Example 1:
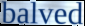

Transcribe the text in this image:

balved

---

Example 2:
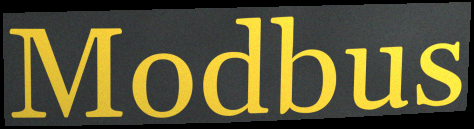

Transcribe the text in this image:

Modbus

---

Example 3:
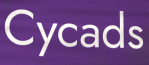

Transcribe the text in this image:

Cycads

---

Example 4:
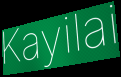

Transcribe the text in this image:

Kayilai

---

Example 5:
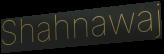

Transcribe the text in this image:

Shahnawaj